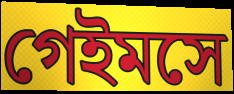
গেইমসে